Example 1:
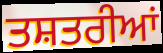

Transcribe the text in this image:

ਤਸ਼ਤਰੀਆਂ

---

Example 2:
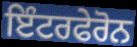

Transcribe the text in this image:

ਇੰਟਰਫੇਰੋਨ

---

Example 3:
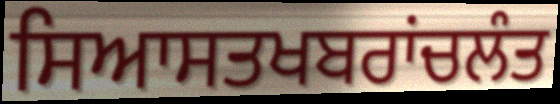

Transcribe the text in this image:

ਸਿਆਸਤਖਬਰਾਂਚਲੰਤ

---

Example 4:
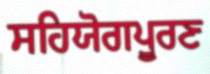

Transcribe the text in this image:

ਸਹਿਯੋਗਪੂਰਣ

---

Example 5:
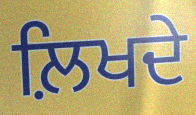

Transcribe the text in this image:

ਲ਼ਿਖਦੇ